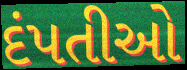
દંપતીઓ